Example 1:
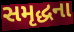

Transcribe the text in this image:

સમૃદ્ધના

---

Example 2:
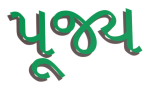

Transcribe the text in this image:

પૂજ્ય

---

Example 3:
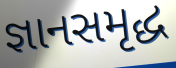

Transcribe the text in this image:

જ્ઞાનસમૃદ્ધ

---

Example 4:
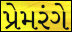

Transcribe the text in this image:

પ્રેમરંગે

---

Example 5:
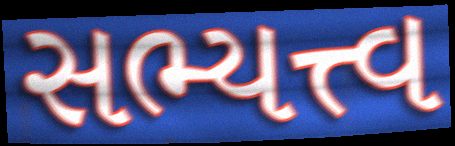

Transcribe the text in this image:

સભ્યત્ત્વ